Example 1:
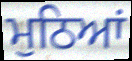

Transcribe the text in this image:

ਮੁਠਿਆਂ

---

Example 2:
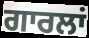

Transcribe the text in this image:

ਗਾਰਲਾਂ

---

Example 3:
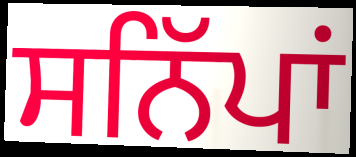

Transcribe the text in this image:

ਸਨਿੱਪਾਂ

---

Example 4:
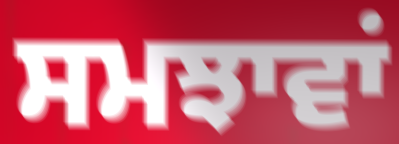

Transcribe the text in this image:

ਸਮਝਾਵਾਂ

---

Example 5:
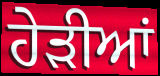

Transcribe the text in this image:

ਹੇੜੀਆਂ